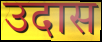
उदास